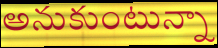
అనుకుంటున్నా